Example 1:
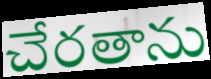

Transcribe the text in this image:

చేరతాను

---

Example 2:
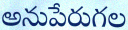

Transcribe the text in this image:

అనుపేరుగల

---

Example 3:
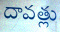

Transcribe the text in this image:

దావత్లు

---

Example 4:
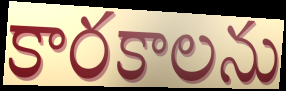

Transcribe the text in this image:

కారకాలను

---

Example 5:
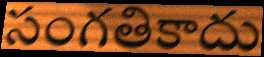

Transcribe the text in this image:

సంగతికాదు